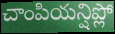
చాంపియన్షిప్లో